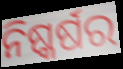
ନିଷ୍କର୍ଷର